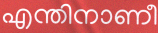
എന്തിനാണീ